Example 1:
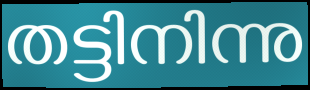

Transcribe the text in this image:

തട്ടിനിന്നു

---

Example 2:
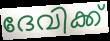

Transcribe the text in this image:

ദേവിക്ക്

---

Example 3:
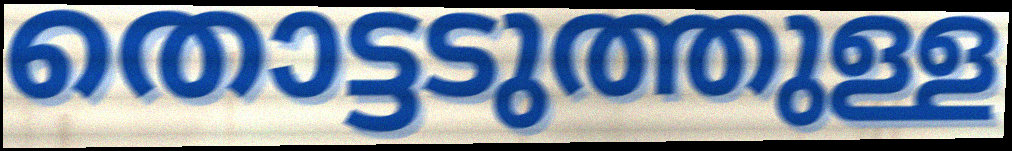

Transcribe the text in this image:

തൊട്ടടുത്തുള്ള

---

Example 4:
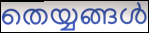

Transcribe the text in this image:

തെയ്യങ്ങൾ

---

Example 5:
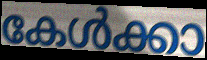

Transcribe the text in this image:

കേൾക്കാ